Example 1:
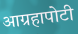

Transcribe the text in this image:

आग्रहापोटी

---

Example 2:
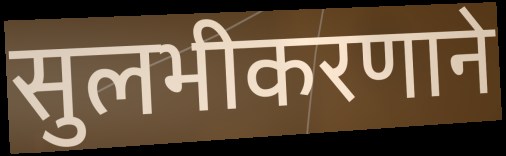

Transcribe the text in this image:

सुलभीकरणाने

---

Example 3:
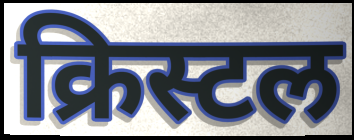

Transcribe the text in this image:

क्रिस्टल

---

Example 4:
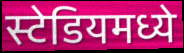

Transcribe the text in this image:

स्टेडियमध्ये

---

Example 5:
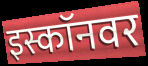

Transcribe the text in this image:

इस्कॉनवर